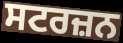
ਸਟਰਜ਼ਨ